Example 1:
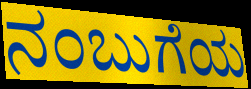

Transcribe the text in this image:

ನಂಬುಗೆಯ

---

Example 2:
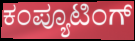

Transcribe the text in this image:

ಕಂಪ್ಯೂಟಿಂಗ್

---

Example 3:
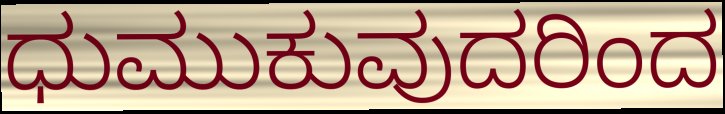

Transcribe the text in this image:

ಧುಮುಕುವುದರಿಂದ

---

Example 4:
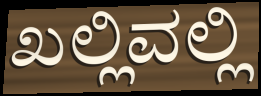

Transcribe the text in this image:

ಖಲ್ಲಿವಲ್ಲಿ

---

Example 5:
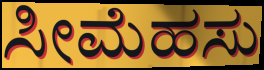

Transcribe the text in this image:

ಸೀಮೆಹಸು